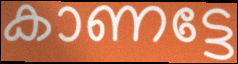
കാണട്ടേ